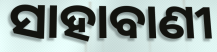
ସାହାବାଣୀ